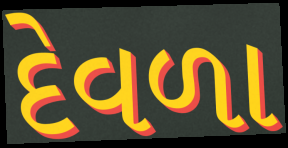
દેવળા